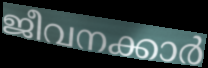
ജീവനക്കാർ